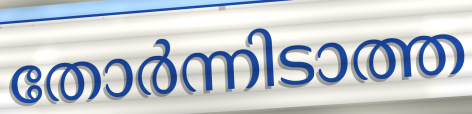
തോർന്നിടാത്ത